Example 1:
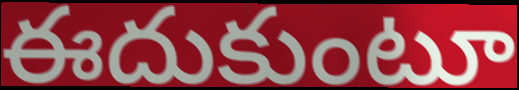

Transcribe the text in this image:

ఈదుకుంటూ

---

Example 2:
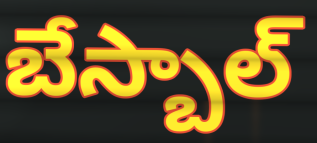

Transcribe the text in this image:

బేస్బాల్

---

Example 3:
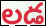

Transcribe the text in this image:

లడ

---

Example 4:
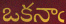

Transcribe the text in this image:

ఒకనాఁ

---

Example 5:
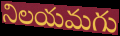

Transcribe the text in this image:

నిలయమగు